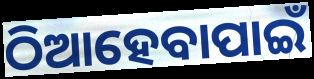
ଠିଆହେବାପାଇଁ